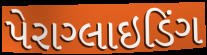
પેરાગ્લાઇડિંગ